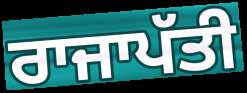
ਰਾਜਾਪੱਤੀ